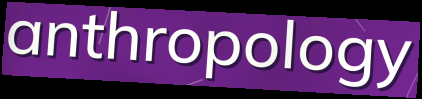
anthropology